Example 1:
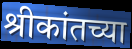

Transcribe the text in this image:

श्रीकांतच्या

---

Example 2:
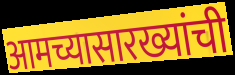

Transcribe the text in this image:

आमच्यासारख्यांची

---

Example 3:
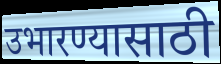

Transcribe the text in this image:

उभारण्यासाठी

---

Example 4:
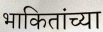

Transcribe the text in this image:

भाकितांच्या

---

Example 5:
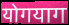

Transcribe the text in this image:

योगयाग